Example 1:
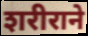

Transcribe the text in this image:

शरीराने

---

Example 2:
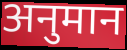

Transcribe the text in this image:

अनुमान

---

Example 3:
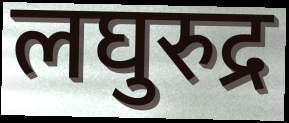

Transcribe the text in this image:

लघुरुद्र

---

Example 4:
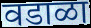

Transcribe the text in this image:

वडाळा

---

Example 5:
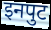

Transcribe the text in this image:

इनपुट